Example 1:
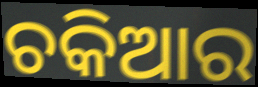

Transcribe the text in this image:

ଚକିଆର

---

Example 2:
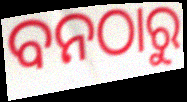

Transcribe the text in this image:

ବନଠାରୁ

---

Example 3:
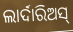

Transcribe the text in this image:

ଲାର୍ଦାରିଅସ୍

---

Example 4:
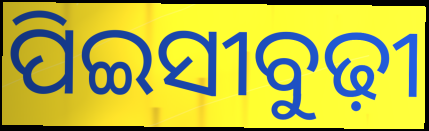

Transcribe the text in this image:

ପିଇସୀବୁଢ଼ୀ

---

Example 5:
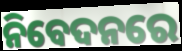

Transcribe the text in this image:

ନିବେଦନରେ